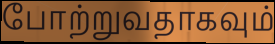
போற்றுவதாகவும்